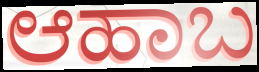
ಆಹಾಬ